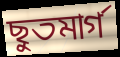
ছুতমার্গ